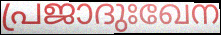
പ്രജാദുഃഖേന